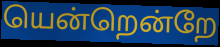
யென்றென்றே